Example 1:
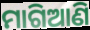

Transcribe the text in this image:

ମାଗିଆଣି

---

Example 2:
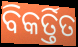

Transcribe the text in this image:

ବିକର୍ତ୍ତିତ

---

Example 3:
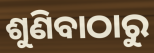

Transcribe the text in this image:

ଶୁଣିବାଠାରୁ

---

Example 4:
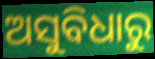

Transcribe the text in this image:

ଅସୁବିଧାରୁ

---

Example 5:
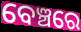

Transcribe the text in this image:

ବେଞ୍ଚରେ